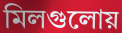
মিলগুলোয়